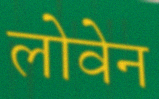
लोवेन